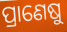
ପ୍ରାଣେଷୁ